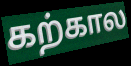
கற்கால